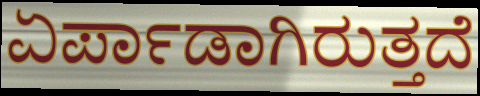
ಏರ್ಪಾಡಾಗಿರುತ್ತದೆ